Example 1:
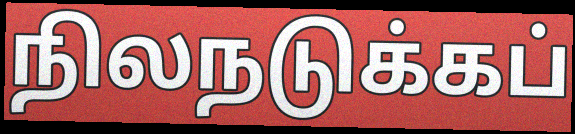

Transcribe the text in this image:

நிலநடுக்கப்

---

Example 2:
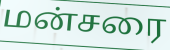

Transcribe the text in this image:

மன்சரை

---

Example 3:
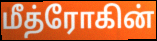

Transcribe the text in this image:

மீத்ரோகின்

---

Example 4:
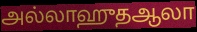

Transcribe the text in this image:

அல்லாஹுதஆலா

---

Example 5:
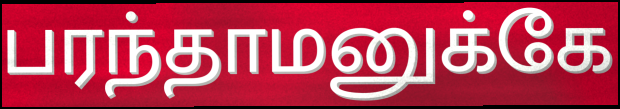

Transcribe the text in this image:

பரந்தாமனுக்கே